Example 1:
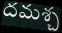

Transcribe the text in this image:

దమశ్చ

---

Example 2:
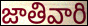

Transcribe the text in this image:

జాతివారి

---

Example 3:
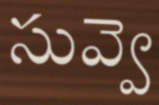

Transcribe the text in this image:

సువ్వె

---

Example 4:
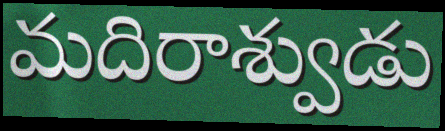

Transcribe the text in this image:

మదిరాశ్వుడు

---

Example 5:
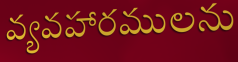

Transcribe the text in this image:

వ్యవహారములను